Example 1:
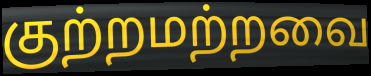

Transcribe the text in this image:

குற்றமற்றவை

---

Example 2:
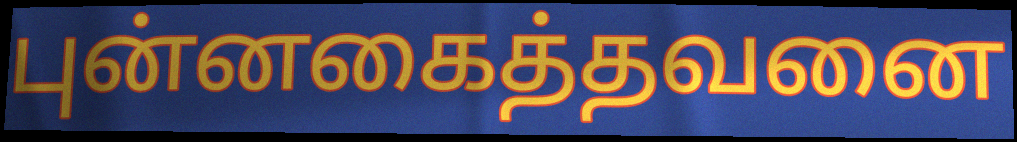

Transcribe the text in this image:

புன்னகைத்தவனை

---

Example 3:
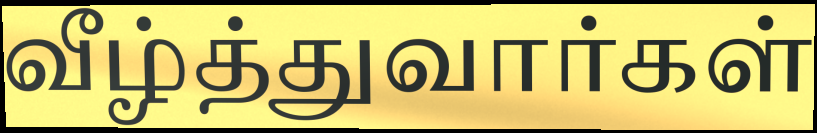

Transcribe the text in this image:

வீழ்த்துவார்கள்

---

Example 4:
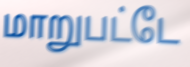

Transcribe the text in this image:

மாறுபட்டே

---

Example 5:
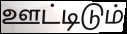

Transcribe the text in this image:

ஊட்டிடும்